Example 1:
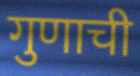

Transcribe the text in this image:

गुणाची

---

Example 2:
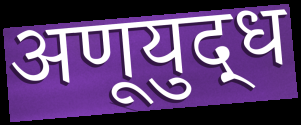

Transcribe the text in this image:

अणूयुद्ध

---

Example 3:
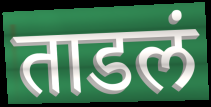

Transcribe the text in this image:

ताडलं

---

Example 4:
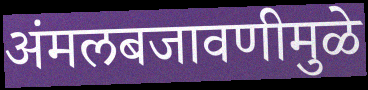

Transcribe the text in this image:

अंमलबजावणीमुळे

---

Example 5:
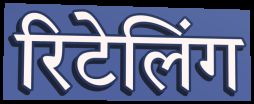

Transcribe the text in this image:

रिटेलिंग